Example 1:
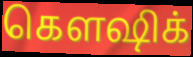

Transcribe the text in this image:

கௌஷிக்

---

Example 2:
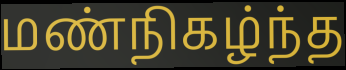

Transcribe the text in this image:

மண்நிகழ்ந்த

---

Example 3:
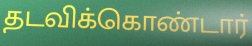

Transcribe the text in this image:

தடவிக்கொண்டார்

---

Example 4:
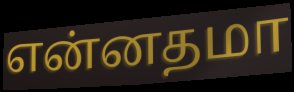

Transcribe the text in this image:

என்னதமா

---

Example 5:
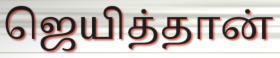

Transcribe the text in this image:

ஜெயித்தான்